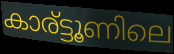
കാര്ട്ടൂണിലെ